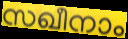
സഖീനാം